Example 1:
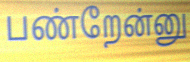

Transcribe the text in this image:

பண்றேன்னு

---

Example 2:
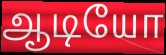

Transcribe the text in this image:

ஆடியோ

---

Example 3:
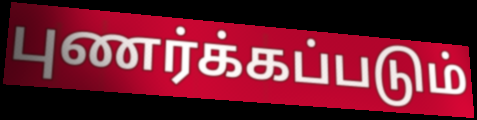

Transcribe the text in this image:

புணர்க்கப்படும்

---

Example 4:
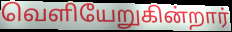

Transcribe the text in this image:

வெளியேறுகின்றார்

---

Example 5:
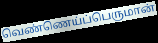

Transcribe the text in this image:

வெண்ணெய்ப்பெருமான்